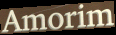
Amorim